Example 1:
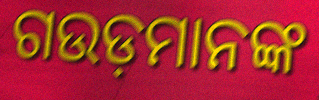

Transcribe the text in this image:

ଗଉଡ଼ମାନଙ୍କ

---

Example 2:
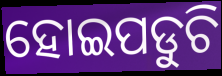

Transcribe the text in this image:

ହୋଇପଡୁଚି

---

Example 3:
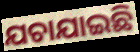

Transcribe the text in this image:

ଯଚାଯାଇଛି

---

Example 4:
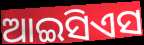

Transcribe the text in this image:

ଆଇସିଏସ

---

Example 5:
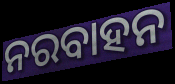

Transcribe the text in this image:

ନରବାହନ